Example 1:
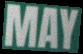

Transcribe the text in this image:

MAY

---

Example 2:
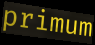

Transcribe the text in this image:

primum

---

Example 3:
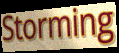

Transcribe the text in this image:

Storming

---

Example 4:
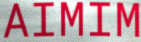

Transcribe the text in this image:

AIMIM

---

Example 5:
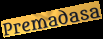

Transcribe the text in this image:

Premadasa